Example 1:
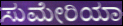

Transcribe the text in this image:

ಸುಮೇರಿಯಾ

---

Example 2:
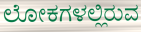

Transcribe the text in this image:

ಲೋಕಗಳಲ್ಲಿರುವ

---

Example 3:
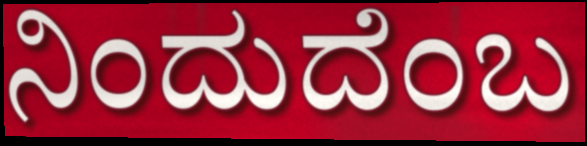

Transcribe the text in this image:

ನಿಂದುದೆಂಬ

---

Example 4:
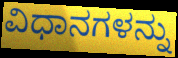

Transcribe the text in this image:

ವಿಧಾನಗಳನ್ನು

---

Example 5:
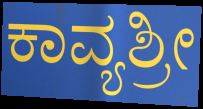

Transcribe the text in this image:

ಕಾವ್ಯಶ್ರೀ